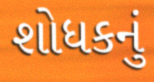
શોધકનું